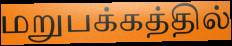
மறுபக்கத்தில்